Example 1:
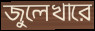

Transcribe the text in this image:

জুলেখারে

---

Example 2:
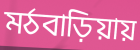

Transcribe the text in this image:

মঠবাড়িয়ায়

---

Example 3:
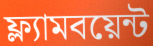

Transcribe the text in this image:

ফ্ল্যামবয়েন্ট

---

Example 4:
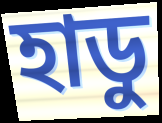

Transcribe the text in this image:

হাডু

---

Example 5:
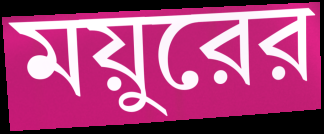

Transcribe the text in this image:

ময়ুরের